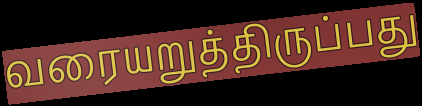
வரையறுத்திருப்பது